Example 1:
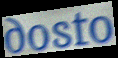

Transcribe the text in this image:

dosto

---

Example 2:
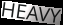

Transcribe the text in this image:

HEAVY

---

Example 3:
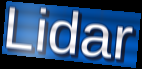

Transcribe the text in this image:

Lidar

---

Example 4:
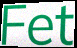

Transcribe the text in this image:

Fet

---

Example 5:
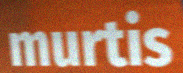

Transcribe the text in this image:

murtis